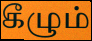
கீழும்